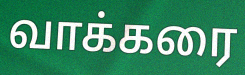
வாக்கரை